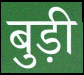
बुड़ी